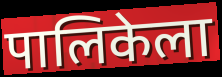
पालिकेला